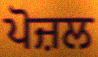
ਪੋਜ਼ਲ